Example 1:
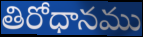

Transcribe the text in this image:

తిరోధానము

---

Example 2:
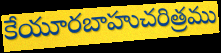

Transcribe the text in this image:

కేయూరబాహుచరిత్రము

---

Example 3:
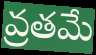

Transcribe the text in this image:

వ్రతమే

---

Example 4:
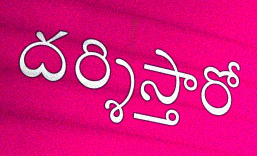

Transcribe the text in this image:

దర్శిస్తారో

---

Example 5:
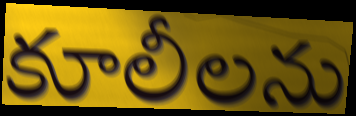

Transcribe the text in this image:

కూలీలను